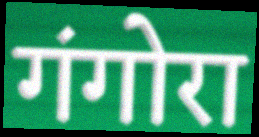
गंगोरा